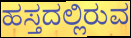
ಹಸ್ತದಲ್ಲಿರುವ